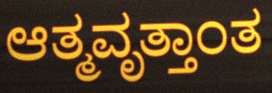
ಆತ್ಮವೃತ್ತಾಂತ